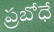
ప్రబోధే